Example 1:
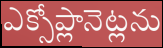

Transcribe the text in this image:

ఎక్సోప్లానెట్లను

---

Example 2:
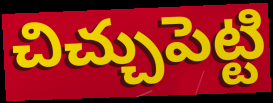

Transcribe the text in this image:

చిచ్చుపెట్టి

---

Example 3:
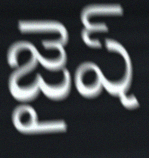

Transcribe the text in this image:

జైష్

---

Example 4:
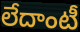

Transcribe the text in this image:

లేదాంటీ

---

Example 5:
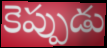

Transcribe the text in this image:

కెప్పుడు